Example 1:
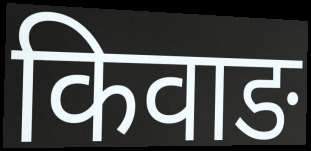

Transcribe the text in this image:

किवाङ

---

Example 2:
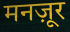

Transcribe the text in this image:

मनज़ूर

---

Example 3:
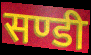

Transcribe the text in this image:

सण्डी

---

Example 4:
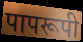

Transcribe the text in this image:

पापरूपी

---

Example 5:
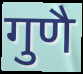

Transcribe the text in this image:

गुणै